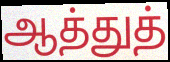
ஆத்துத்